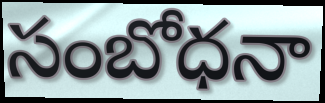
సంబోధనా